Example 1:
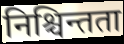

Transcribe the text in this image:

निश्चिन्तता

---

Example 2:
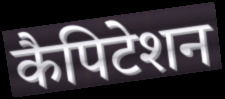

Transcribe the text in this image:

कैपिटेशन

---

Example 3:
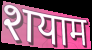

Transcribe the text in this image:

शयाम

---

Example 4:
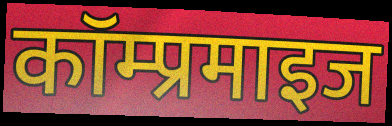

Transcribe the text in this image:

कॉम्प्रमाइज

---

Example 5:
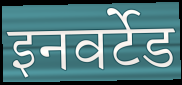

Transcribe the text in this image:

इनवर्टेड